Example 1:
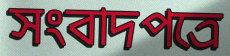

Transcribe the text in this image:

সংবাদপত্রে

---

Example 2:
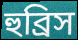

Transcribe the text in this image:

হুব্রিস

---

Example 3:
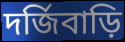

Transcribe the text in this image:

দর্জিবাড়ি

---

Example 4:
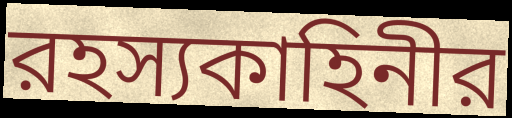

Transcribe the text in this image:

রহস্যকাহিনীর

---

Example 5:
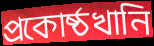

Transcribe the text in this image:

প্রকোষ্ঠখানি